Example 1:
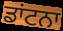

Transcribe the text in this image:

ਡਾਂਟਨਾ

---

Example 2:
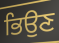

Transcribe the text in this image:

ਭਿਉਣ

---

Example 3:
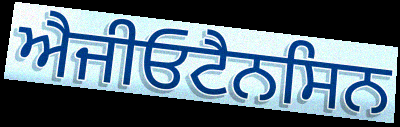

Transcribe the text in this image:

ਐਜੀਓਟੈਨਸਿਨ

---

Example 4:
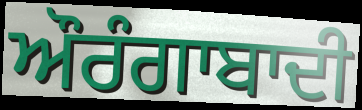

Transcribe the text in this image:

ਔਰੰਗਾਬਾਦੀ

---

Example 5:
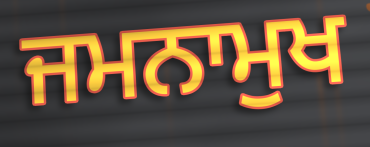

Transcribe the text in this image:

ਜਮਨਾਮੁਖ